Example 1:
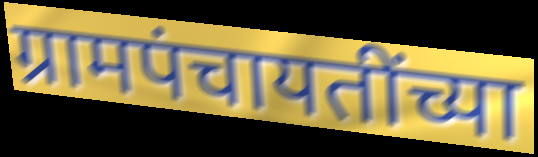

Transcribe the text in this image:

ग्रामपंचायतींच्या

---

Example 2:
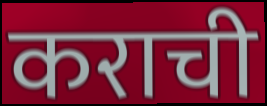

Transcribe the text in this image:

कराची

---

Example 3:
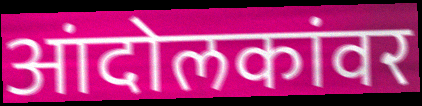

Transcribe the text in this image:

आंदोलकांवर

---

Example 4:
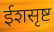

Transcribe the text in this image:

ईशसृष्ट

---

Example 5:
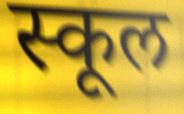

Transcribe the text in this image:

स्कूल